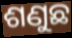
ଶଣୁଛ